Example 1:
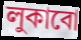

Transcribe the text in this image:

লুকাবো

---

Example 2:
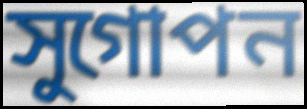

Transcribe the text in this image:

সুগোপন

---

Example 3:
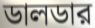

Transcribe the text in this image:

ডালডার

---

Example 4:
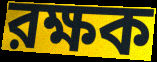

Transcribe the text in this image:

রক্ষক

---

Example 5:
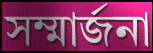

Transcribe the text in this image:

সম্মার্জনা